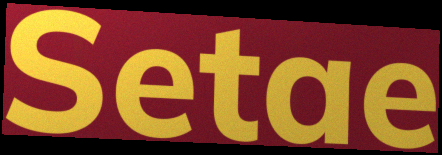
Setae